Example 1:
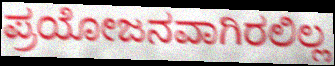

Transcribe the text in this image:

ಪ್ರಯೋಜನವಾಗಿರಲಿಲ್ಲ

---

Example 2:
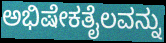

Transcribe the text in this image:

ಅಭಿಷೇಕತೈಲವನ್ನು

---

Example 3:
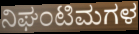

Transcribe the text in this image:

ನಿಘಂಟಿಮಗಳ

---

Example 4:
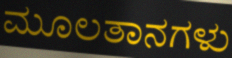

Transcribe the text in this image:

ಮೂಲತಾನಗಳು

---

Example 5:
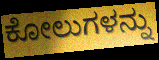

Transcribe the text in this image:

ಕೋಲುಗಳನ್ನು